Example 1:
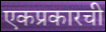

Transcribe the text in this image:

एकप्रकारची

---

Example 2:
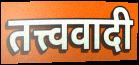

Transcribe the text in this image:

तत्त्ववादी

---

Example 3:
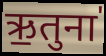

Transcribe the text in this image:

ऋ॒तुना॑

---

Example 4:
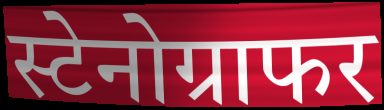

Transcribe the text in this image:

स्टेनोग्राफर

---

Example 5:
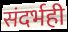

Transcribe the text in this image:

संदर्भही